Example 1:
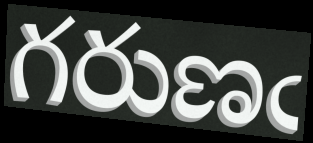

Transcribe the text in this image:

గరుణఁ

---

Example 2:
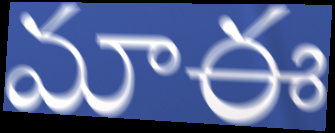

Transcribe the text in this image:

మాఈ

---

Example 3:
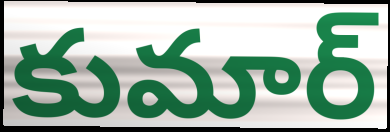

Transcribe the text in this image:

కుమార్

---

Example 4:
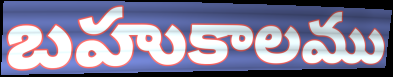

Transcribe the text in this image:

బహుకాలము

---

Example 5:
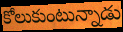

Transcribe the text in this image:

కోలుకుంటున్నాడు